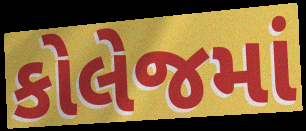
કોલેજમાં